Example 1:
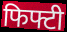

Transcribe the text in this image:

फिफ्टी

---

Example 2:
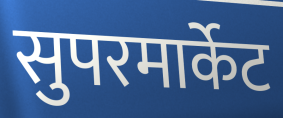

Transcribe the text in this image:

सुपरमार्केट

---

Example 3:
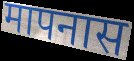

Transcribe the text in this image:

मापनास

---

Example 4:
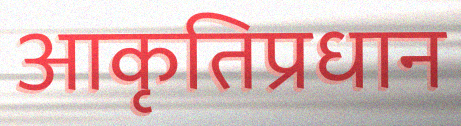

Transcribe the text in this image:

आकृतिप्रधान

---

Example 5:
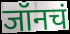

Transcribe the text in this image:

जॉनचं